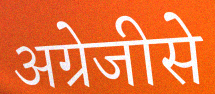
अग्रेजीसे